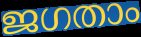
ജഗതാം